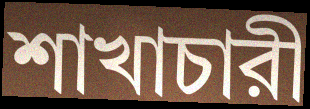
শাখাচারী